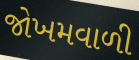
જોખમવાળી